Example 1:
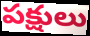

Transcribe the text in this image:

పక్షులు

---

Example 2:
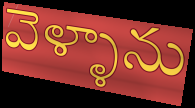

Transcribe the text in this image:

వెళ్ళాను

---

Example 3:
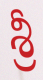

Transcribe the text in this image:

శ్రీ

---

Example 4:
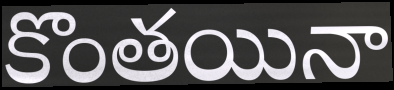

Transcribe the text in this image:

కొంతయినా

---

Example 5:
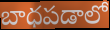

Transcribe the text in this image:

బాధపడాలో